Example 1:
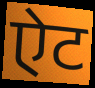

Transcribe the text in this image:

ऐट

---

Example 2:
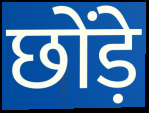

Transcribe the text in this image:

छोंड़े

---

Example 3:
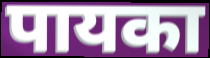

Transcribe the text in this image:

पायका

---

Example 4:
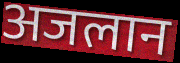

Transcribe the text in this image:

अजलान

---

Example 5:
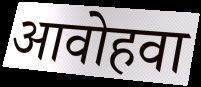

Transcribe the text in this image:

आवोहवा